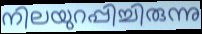
നിലയുറപ്പിച്ചിരുന്നു